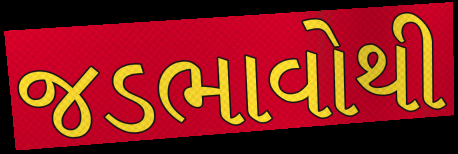
જડભાવોથી